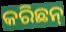
କରିଛନ୍